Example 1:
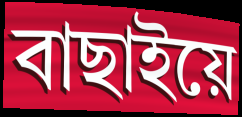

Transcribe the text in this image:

বাছাইয়ে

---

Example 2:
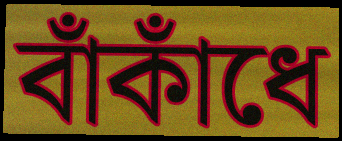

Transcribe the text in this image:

বাঁকাঁধে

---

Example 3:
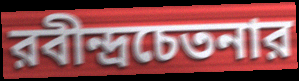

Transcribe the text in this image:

রবীন্দ্রচেতনার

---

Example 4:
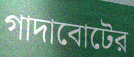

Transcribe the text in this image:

গাদাবোটের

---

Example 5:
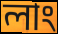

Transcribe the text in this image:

লাং